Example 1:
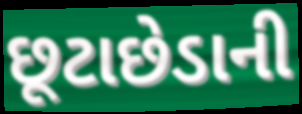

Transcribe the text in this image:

છૂટાછેડાની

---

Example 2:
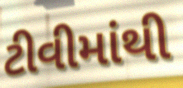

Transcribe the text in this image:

ટીવીમાંથી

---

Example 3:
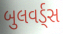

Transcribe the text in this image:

બુલવર્ડ્સ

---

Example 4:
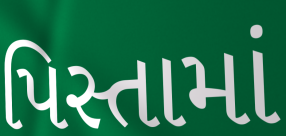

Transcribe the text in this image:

પિસ્તામાં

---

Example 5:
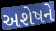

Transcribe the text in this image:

અશેષને